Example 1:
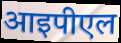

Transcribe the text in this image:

आइपीएल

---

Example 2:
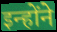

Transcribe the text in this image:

इन्होंने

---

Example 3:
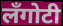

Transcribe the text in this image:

लँगोटी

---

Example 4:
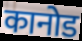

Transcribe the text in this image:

कानोड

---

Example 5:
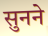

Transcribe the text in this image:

सुनने